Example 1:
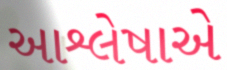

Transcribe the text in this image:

આશ્લેષાએ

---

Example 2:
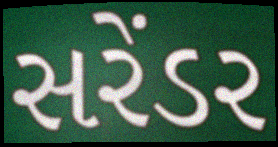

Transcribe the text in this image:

સરેંડર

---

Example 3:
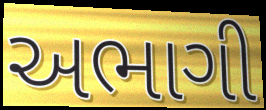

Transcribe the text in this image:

અભાગી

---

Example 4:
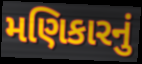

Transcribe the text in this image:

મણિકારનું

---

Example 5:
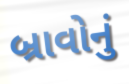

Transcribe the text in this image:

બ્રાવોનું